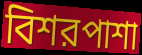
বিশরপাশা